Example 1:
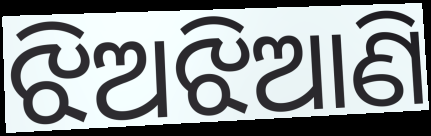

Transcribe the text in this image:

ଝିଅଝିଆଣି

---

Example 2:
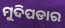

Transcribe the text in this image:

ମୁଦିପଡାର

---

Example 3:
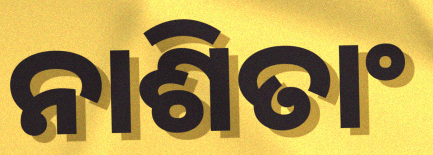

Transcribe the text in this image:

ନାଶିତାଂ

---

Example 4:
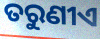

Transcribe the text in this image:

ତରୁଣୀଏ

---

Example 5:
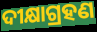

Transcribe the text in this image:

ଦୀକ୍ଷାଗ୍ରହଣ